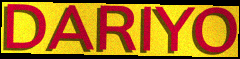
DARIYO